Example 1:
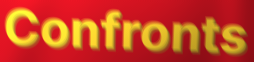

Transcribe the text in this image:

Confronts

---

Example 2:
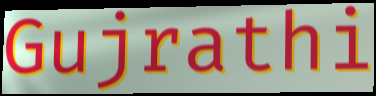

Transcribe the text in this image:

Gujrathi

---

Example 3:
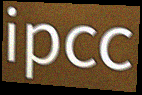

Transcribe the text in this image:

ipcc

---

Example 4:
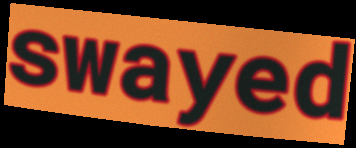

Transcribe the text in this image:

swayed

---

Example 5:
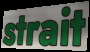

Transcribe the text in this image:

strait